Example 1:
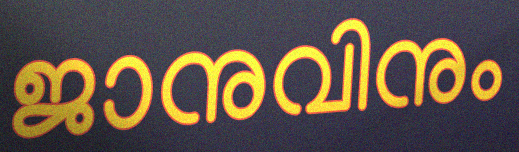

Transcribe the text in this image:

ജാനുവിനും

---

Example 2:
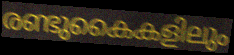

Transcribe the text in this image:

രണ്ടുകൈകളിലും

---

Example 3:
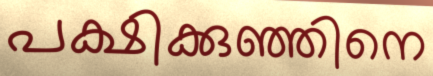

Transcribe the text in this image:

പക്ഷിക്കുഞ്ഞിനെ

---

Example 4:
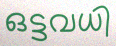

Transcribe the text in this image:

ഒട്ടവധി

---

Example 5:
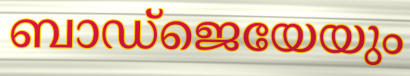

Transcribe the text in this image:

ബാഡ്ജെയേയും